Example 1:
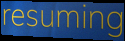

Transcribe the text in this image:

resuming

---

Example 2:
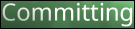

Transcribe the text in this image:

Committing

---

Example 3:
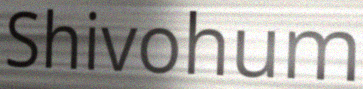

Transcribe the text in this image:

Shivohum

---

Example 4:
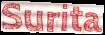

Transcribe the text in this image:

Surita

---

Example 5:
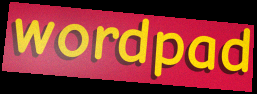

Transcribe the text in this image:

wordpad